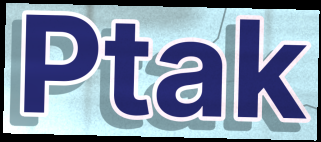
Ptak